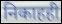
निकाहही